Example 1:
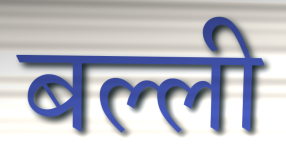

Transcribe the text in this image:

बल्ली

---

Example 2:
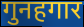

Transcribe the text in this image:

गुनहगार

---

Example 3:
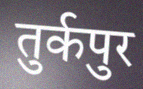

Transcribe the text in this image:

तुर्कपुर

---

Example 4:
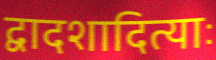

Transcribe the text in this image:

द्वादशादित्याः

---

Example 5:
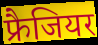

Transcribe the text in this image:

फ्रैजियर